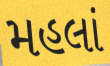
મહલાં